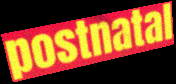
postnatal